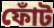
ফোঁট